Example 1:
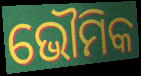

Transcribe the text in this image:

ଭୌମିକ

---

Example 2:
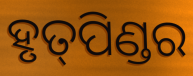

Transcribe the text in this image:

ହୃତ୍‌ପିଣ୍ଡର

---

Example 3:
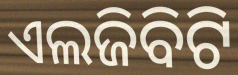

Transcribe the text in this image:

ଏଲଜିବିଟି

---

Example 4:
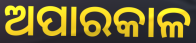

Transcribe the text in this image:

ଅପାରକାଳ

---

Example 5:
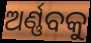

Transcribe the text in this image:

ଅର୍ଣ୍ଣବକୁ